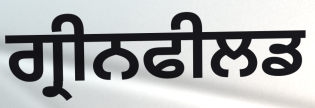
ਗ੍ਰੀਨਫੀਲਡ